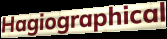
Hagiographical